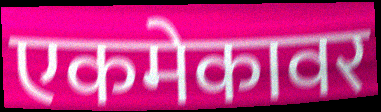
एकमेकावर